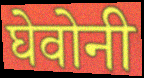
घेवोनी